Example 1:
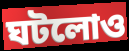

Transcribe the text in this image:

ঘটলোও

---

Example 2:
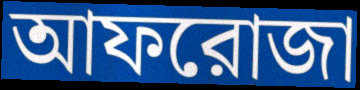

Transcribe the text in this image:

আফরোজা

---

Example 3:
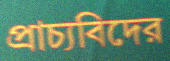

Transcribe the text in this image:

প্রাচ্যবিদের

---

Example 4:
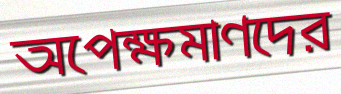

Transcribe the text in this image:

অপেক্ষমাণদের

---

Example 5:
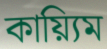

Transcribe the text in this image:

কায়্যিম